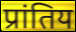
प्रांतिय